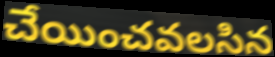
చేయించవలసిన